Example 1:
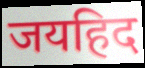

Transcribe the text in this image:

जयहिद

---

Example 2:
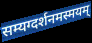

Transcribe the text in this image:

सम्यग्दर्शनमस्मयम्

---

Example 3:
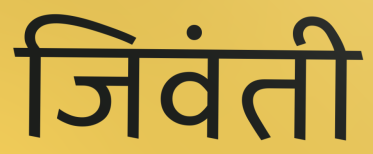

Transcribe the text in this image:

जिवंती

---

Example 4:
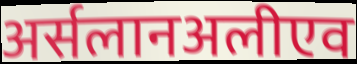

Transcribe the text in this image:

अर्सलानअलीएव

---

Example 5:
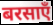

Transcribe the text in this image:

बरसाएँ